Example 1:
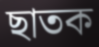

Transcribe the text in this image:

ছাতক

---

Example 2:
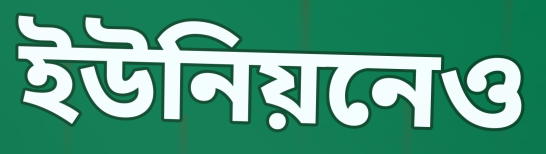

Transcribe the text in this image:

ইউনিয়নেও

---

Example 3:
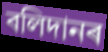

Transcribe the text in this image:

বলিদানৰ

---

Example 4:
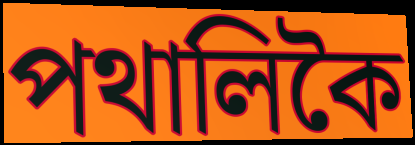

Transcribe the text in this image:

পথালিকৈ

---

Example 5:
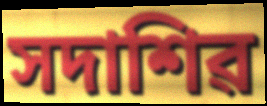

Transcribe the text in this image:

সদাশিৱ